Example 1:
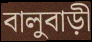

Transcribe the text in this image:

বালুবাড়ী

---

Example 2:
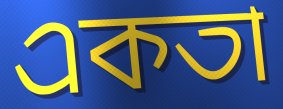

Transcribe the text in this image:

একতা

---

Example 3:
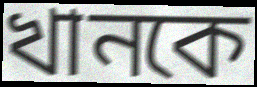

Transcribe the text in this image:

খানকে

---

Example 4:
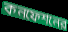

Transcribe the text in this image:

কনফেশনের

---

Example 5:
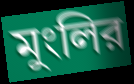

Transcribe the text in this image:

মুংলির